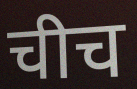
चीच